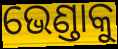
ଭେଣ୍ଡାକୁ